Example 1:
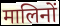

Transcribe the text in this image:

मालिनों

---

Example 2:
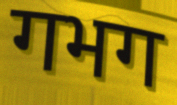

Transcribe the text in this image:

गभग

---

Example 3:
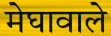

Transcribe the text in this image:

मेघावाले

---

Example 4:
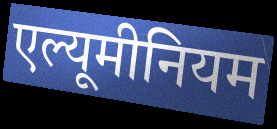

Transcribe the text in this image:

एल्‍यूमीनियम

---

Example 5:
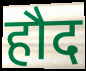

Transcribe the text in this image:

हौद